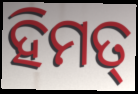
ହିମତ୍